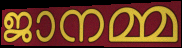
ജാനമ്മ